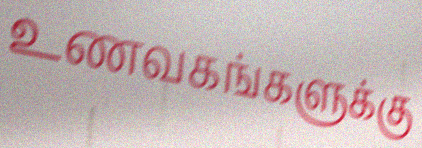
உணவகங்களுக்கு